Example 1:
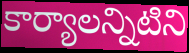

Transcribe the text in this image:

కార్యాలన్నిటిని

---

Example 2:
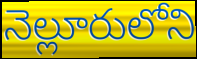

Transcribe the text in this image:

నెల్లూరులోని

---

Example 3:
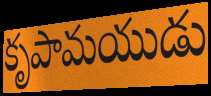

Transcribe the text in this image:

కృపామయుడు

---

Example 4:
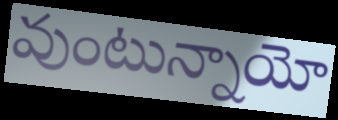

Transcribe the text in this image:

వుంటున్నాయో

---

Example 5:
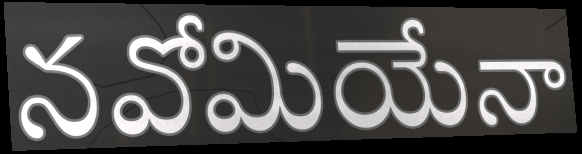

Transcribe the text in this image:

నవోమియేనా